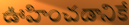
ఊహించడానికే